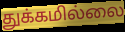
துக்கமில்லை